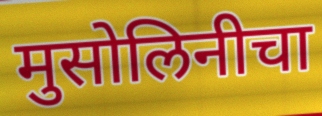
मुसोलिनीचा